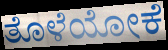
ತೊಳೆಯೋಕೆ